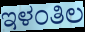
ಇಳಂತಿಲ